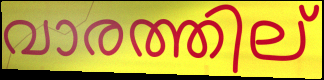
വാരത്തില്